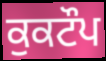
ਕੁਕਟੌਪ